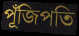
পূঁজিপতি